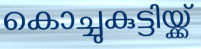
കൊച്ചുകുട്ടിയ്ക്ക്